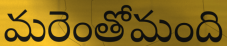
మరెంతోమంది